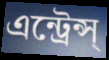
এন্ট্রেন্স্